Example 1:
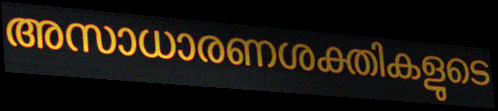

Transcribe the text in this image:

അസാധാരണശക്തികളുടെ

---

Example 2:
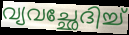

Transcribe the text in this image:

വ്യവച്ഛേദിച്ച്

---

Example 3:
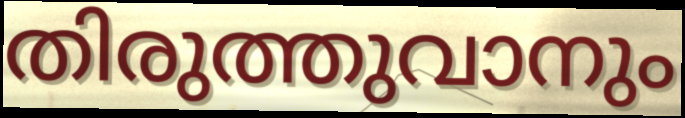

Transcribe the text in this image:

തിരുത്തുവാനും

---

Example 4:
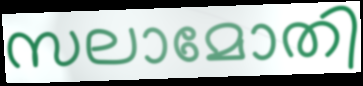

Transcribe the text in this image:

സലാമോതി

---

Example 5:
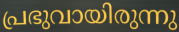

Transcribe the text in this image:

പ്രഭുവായിരുന്നു